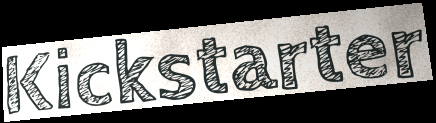
Kickstarter